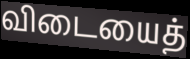
விடையைத்